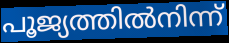
പൂജ്യത്തിൽനിന്ന്